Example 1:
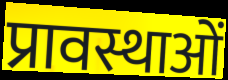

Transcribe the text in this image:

प्रावस्थाओं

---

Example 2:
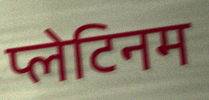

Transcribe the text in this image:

प्लेटिनम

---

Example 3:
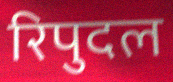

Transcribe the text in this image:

रिपुदल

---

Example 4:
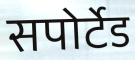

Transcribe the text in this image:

सपोर्टेड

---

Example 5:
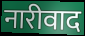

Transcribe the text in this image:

नारीवाद